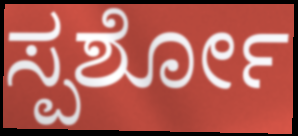
ಸ್ಪರ್ಶೋ